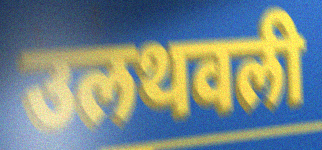
उलथवली